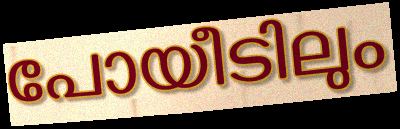
പോയീടിലും